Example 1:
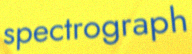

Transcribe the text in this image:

spectrograph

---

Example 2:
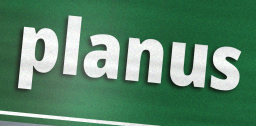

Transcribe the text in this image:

planus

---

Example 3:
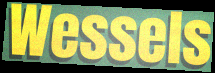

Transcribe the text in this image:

Wessels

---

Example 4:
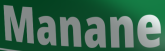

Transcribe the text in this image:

Manane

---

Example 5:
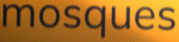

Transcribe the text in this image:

mosques